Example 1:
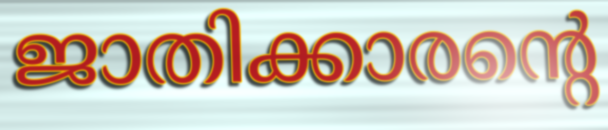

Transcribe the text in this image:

ജാതിക്കാരന്റെ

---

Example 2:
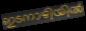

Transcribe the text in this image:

ഇടനാഴിയിൽ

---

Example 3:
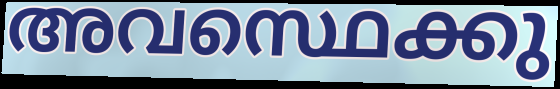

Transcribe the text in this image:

അവസ്ഥെക്കു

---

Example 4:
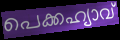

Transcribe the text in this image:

പെക്കഹ്യാവ്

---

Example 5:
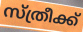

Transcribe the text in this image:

സ്ത്രീക്ക്